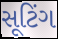
સૂટિંગ